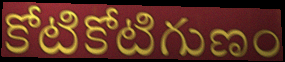
కోటికోటిగుణం